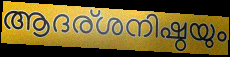
ആദര്ശനിഷ്ഠയും